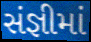
સંજ્ઞીમાં